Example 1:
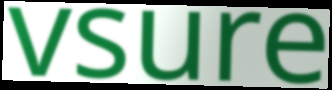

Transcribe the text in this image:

vsure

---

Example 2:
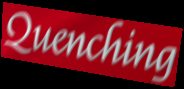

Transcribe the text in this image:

Quenching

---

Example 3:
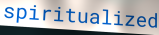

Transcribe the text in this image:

spiritualized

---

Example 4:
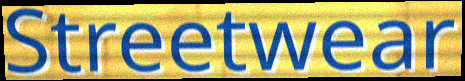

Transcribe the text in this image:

Streetwear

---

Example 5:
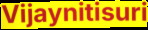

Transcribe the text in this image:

Vijaynitisuri